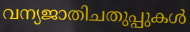
വന്യജാതിചതുപ്പുകൾ